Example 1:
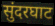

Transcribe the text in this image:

सुंदरघाट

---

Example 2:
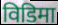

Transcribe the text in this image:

विडिमा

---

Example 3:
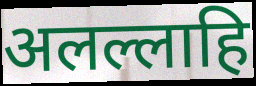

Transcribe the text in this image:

अलल्लाहि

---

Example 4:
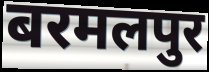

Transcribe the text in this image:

बरमलपुर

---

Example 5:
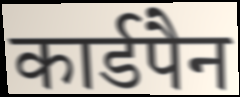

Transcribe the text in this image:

कार्डपैन